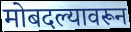
मोबदल्यावरून